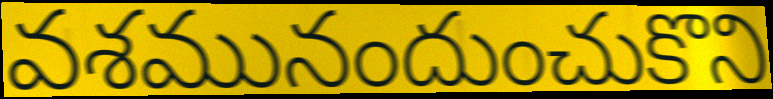
వశమునందుంచుకొని